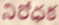
నిరోధక